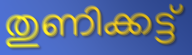
തുണിക്കട്ട്